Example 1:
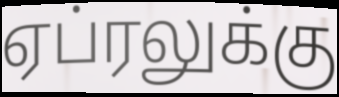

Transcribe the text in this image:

ஏப்ரலுக்கு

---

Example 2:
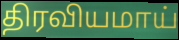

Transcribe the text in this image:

திரவியமாய்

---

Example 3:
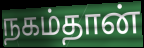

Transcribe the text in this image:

நகம்தான்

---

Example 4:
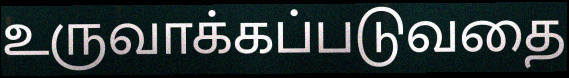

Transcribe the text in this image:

உருவாக்கப்படுவதை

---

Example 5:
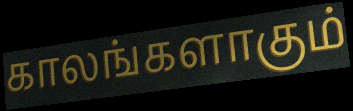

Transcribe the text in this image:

காலங்களாகும்